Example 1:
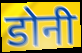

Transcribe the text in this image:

डोनी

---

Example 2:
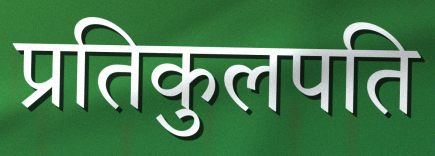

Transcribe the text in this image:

प्रतिकुलपति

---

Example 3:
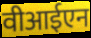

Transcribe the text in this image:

वीआईएन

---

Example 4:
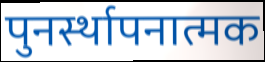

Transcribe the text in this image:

पुनर्स्थापनात्मक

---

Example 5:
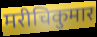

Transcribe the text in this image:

मरीचिकुमार